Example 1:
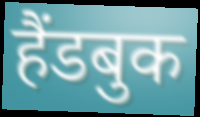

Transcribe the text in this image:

हैंडबुक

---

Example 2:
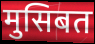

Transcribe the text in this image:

मुसिबत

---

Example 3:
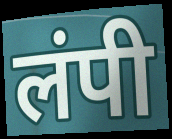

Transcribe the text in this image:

लंपी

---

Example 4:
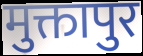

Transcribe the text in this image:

मुक्तापुर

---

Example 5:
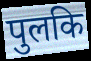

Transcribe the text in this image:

पुलकि